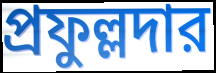
প্রফুল্লদার